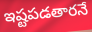
ఇష్టపడతారనే